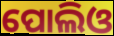
ପୋଲିଓ